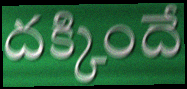
దక్కిందే